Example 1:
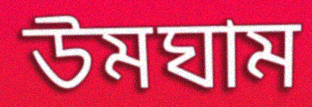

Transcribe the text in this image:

উমঘাম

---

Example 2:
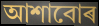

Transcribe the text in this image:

আশাবোৰ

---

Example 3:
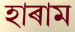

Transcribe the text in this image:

হাৰাম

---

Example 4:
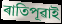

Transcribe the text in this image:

ৰাতিপূৱাই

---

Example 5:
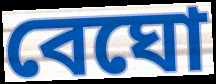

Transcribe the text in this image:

বেঘো